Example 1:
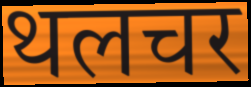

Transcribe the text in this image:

थलचर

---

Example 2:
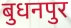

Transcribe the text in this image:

बुधनपुर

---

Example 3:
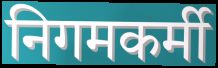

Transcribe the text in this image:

निगमकर्मी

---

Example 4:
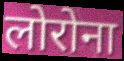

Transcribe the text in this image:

लोरोना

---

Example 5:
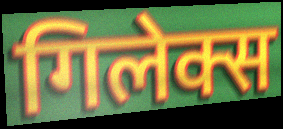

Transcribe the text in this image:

गिलेक्स